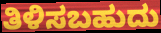
ತಿಳಿಸಬಹುದು